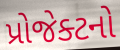
પ્રોજેક્ટનો